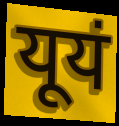
यूयं